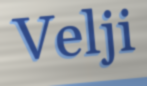
Velji